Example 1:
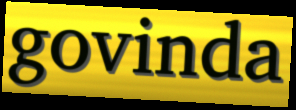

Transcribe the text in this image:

govinda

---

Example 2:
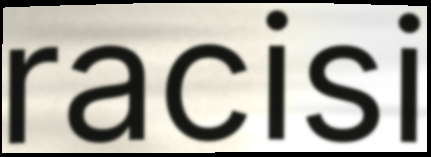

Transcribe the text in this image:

racisi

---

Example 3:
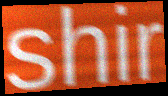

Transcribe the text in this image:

shir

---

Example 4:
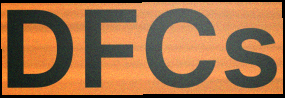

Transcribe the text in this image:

DFCs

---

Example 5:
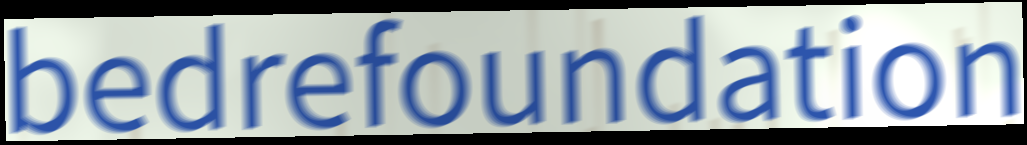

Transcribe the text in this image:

bedrefoundation